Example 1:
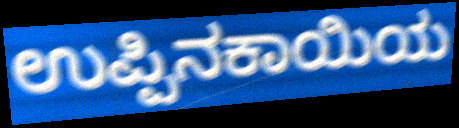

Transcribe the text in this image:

ಉಪ್ಪಿನಕಾಯಿಯ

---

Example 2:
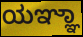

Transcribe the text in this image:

ಯಞ್ಞಾ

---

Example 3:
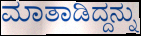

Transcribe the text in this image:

ಮಾತಾಡಿದ್ದನ್ನು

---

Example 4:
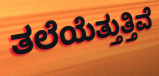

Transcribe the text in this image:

ತಲೆಯೆತ್ತುತ್ತಿವೆ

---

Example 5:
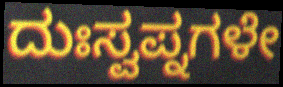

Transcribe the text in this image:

ದುಃಸ್ವಪ್ನಗಳೇ